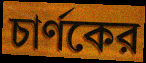
চার্ণকের